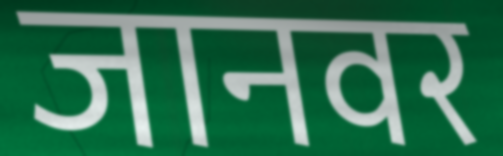
जानवर